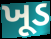
ખૂડ